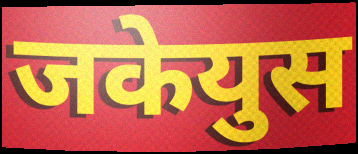
जकेयुस